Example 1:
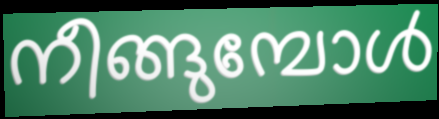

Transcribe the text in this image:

നീങ്ങുമ്പോൾ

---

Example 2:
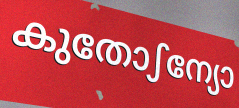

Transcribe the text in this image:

കുതോഽന്യോ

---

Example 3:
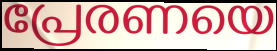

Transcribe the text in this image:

പ്രേരണയെ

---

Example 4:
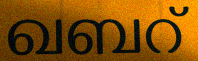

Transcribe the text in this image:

ഖബറ്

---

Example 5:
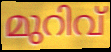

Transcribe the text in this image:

മുറിവ്